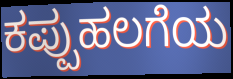
ಕಪ್ಪುಹಲಗೆಯ